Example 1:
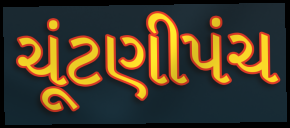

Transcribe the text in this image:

ચૂંટણીપંચ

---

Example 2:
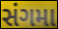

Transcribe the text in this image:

સંગમા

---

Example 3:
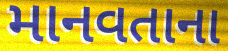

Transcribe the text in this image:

માનવતાના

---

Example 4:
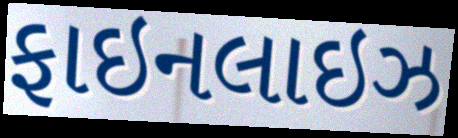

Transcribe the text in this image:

ફાઇનલાઇઝ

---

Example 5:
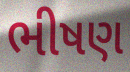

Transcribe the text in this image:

ભીષણ